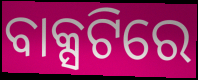
ବାକ୍ସଟିରେ